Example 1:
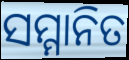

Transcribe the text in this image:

ସମ୍ମାନିତ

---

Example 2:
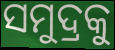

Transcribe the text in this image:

ସମୁଦ୍ରକୁ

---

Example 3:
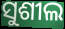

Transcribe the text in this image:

ସୁଶୀଲ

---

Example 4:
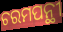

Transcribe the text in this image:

ଚରମପନ୍ଥୀ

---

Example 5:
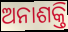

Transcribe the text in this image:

ଅନାଶକ୍ତି